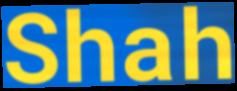
Shah